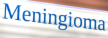
Meningioma